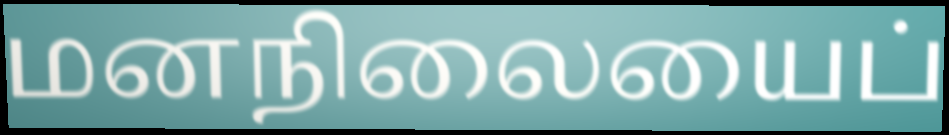
மனநிலையைப்